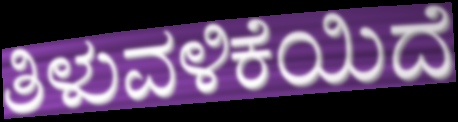
ತಿಳುವಳಿಕೆಯಿದೆ